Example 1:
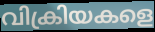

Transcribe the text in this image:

വിക്രിയകളെ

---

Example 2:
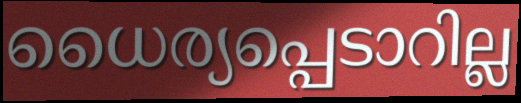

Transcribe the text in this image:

ധൈര്യപ്പെടാറില്ല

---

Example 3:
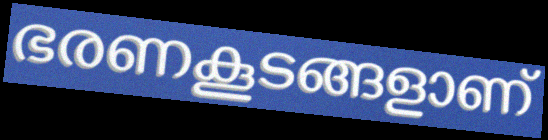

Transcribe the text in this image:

ഭരണകൂടങ്ങളാണ്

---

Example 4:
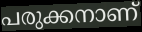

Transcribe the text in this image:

പരുക്കനാണ്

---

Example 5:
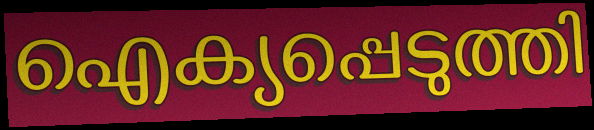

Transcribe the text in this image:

ഐക്യപ്പെടുത്തി